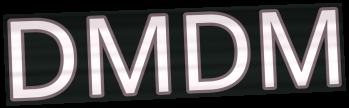
DMDM